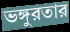
ভঙ্গুরতার